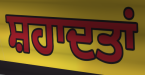
ਸ਼ਹਾਦਤਾਂ